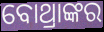
ବୋଥ୍ରାଙ୍କର